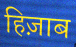
हिज़ाब